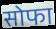
सोफा